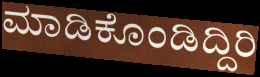
ಮಾಡಿಕೊಂಡಿದ್ದಿರಿ